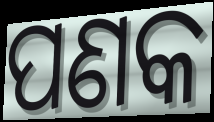
ପଣକ